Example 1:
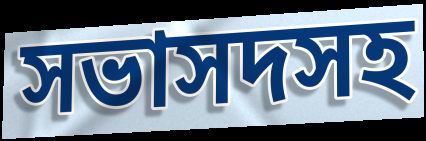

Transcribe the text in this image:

সভাসদসহ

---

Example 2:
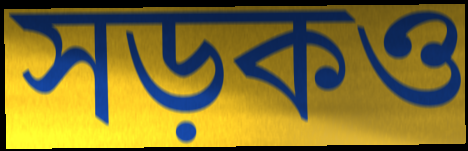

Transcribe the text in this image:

সড়কও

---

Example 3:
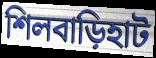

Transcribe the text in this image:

শিলবাড়িহাট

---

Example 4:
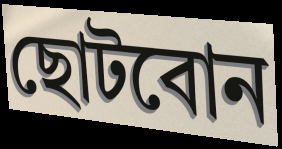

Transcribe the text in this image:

ছোটবোন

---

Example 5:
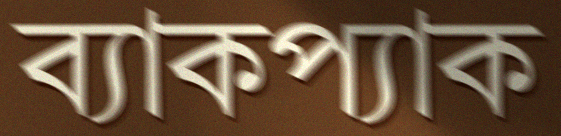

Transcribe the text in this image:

ব্যাকপ্যাক